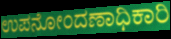
ಉಪನೋಂದಣಾಧಿಕಾರಿ